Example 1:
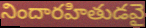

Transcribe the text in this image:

నిందారహితుడవై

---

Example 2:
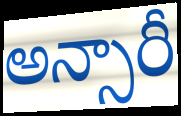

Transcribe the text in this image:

అన్సారీ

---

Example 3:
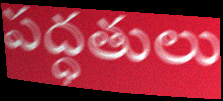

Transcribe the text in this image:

పద్ధతులు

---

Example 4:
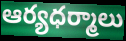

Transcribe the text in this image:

ఆర్యధర్మాలు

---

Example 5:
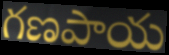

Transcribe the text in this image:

గణపాయ